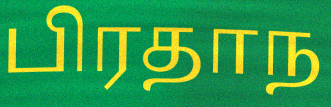
பிரதாந